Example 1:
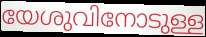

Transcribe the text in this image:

യേശുവിനോടുള്ള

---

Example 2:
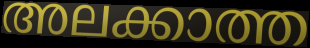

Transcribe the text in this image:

അലക്കാത്ത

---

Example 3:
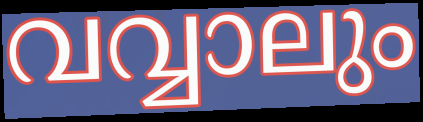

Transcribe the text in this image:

വവ്വാലും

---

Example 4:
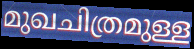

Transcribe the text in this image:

മുഖചിത്രമുള്ള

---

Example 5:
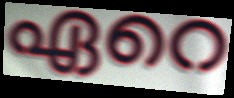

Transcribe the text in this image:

ഏറെ